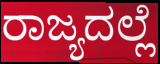
ರಾಜ್ಯದಲ್ಲೆ